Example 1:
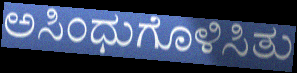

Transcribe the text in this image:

ಅಸಿಂಧುಗೊಳಿಸಿತು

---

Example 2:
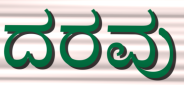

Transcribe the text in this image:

ದರವು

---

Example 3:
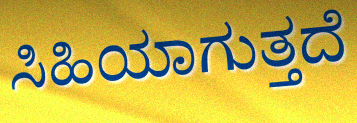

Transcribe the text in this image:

ಸಿಹಿಯಾಗುತ್ತದೆ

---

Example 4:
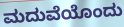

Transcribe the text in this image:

ಮದುವೆಯೊಂದು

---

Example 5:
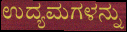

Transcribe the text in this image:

ಉದ್ಯಮಗಳನ್ನು